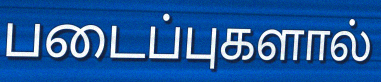
படைப்புகளால்